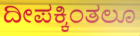
ದೀಪಕ್ಕಿಂತಲೂ